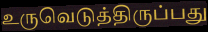
உருவெடுத்திருப்பது